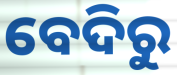
ବେଦିରୁ